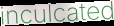
inculcated